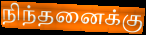
நிந்தனைக்கு